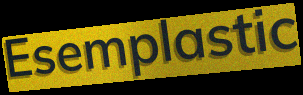
Esemplastic